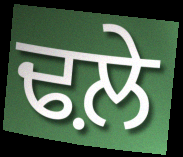
ਢਲ਼ੇ